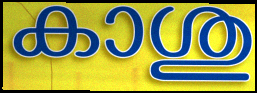
കാശു